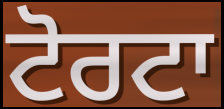
ਟੋਰਟਾ